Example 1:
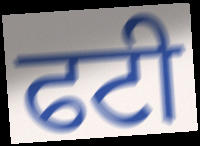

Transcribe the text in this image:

ਫਟੀ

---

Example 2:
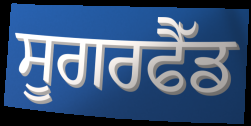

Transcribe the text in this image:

ਸੂਗਰਫੈੱਡ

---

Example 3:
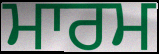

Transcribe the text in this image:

ਮਾਰਮ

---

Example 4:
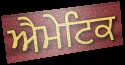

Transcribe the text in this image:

ਐਮੇਟਿਕ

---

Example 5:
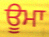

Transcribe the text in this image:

ਊਮਾ